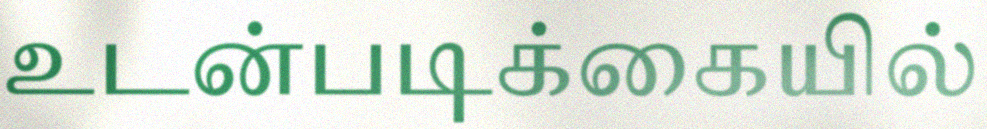
உடன்படிக்கையில்